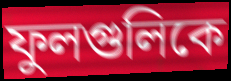
ফুলগুলিকে